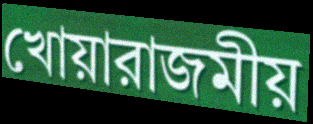
খোয়ারাজমীয়